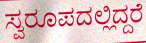
ಸ್ವರೂಪದಲ್ಲಿದ್ದರೆ